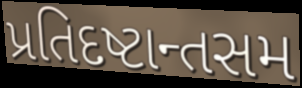
પ્રતિદષ્ટાન્તસમ